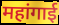
महांगाई